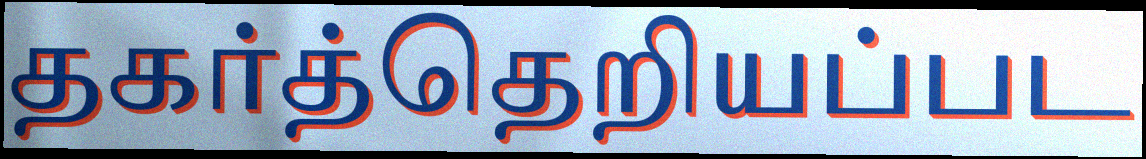
தகர்த்தெறியப்பட